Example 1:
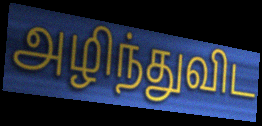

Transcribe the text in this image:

அழிந்துவிட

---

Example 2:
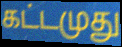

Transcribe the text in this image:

கட்டமுது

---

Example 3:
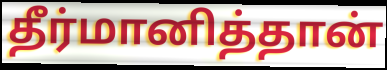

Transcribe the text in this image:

தீர்மானித்தான்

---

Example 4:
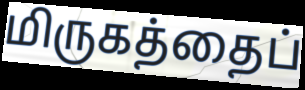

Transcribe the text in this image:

மிருகத்தைப்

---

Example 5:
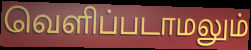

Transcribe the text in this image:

வெளிப்படாமலும்